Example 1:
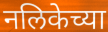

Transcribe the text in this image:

नलिकेच्या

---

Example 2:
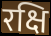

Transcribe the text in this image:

रक्षि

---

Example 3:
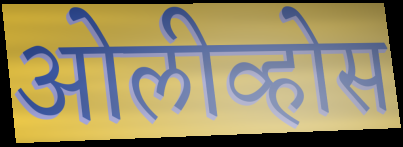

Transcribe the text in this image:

ओलीव्होस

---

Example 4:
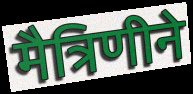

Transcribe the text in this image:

मैत्रिणीने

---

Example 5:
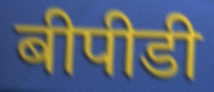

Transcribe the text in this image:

बीपीडी